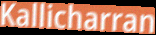
Kallicharran